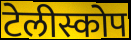
टेलीस्कोप